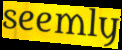
seemly